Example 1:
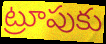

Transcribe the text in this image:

ట్రూపుకు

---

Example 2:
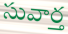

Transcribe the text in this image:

సువార్త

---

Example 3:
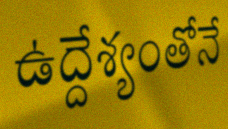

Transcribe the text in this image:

ఉద్దేశ్యంతోనే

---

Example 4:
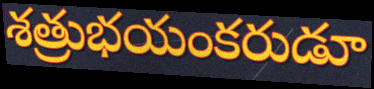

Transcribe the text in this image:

శత్రుభయంకరుడూ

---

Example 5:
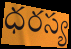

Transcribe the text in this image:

ధరస్య